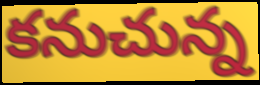
కనుచున్న